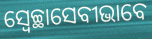
ସ୍ୱେଚ୍ଛାସେବୀଭାବେ